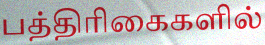
பத்திரிகைகளில்